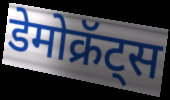
डेमोक्रॅट्स